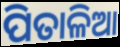
ପିତାଳିଆ